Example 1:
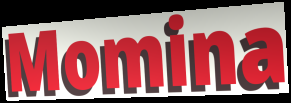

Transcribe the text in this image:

Momina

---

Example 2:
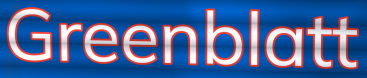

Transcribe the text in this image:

Greenblatt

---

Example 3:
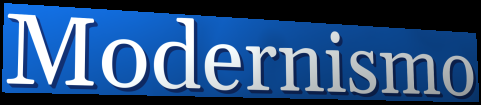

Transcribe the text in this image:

Modernismo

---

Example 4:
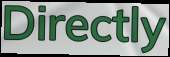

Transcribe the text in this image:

Directly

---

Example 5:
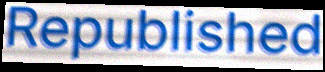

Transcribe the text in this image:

Republished